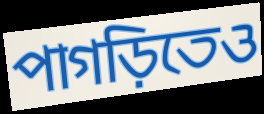
পাগড়িতেও